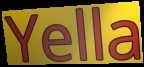
Yella